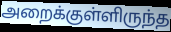
அறைக்குள்ளிருந்த